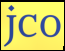
jco